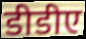
डीडीए